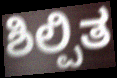
ಶಿಲ್ಪಿತ